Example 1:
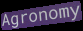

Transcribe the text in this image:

Agronomy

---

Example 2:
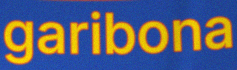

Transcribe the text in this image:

garibona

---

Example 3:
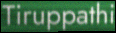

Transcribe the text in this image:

Tiruppathi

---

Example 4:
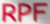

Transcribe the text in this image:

RPF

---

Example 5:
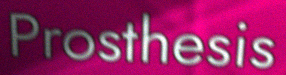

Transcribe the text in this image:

Prosthesis